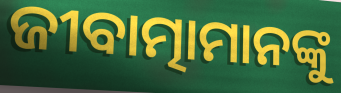
ଜୀବାତ୍ମାମାନଙ୍କୁ